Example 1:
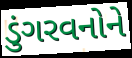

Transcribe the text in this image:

ડુંગરવનોને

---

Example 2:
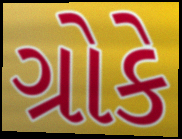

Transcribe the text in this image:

ગ્રોકે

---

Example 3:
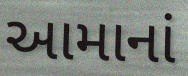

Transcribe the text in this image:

આમાનાં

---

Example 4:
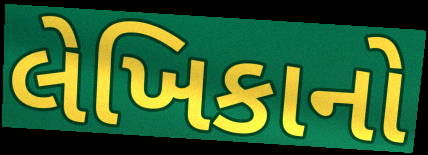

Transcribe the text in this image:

લેખિકાનો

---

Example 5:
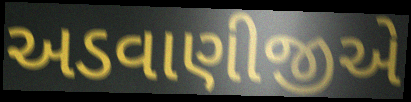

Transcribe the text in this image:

અડવાણીજીએ